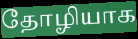
தோழியாக